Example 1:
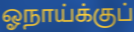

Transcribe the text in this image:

ஓநாய்க்குப்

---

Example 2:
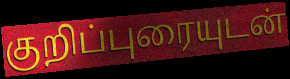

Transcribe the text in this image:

குறிப்புரையுடன்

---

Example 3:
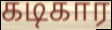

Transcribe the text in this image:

கடிகார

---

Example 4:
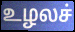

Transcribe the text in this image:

உழலச்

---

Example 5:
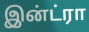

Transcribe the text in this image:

இன்ட்ரா